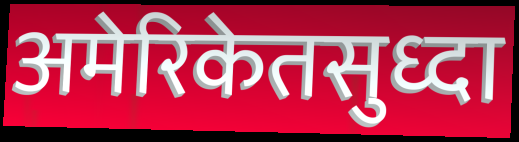
अमेरिकेतसुध्दा